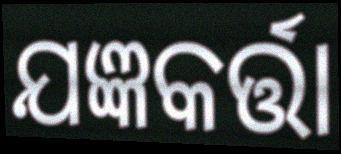
ଯଜ୍ଞକର୍ତ୍ତା